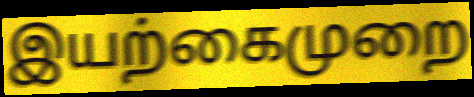
இயற்கைமுறை